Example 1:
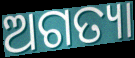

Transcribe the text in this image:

ଅଗତ୍ୟା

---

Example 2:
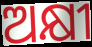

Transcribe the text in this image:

ଅକ୍ଷୀ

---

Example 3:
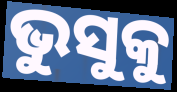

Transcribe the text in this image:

ଭୁସୁକୁ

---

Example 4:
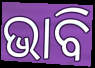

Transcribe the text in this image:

ଭାବି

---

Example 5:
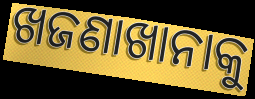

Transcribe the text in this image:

ଖଜଣାଖାନାକୁ